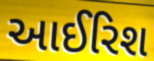
આઈરિશ